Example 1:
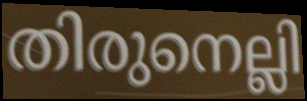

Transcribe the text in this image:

തിരുനെല്ലി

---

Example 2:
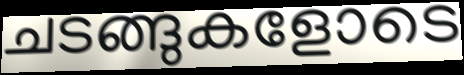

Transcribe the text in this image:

ചടങ്ങുകളോടെ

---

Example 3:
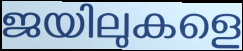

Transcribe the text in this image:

ജയിലുകളെ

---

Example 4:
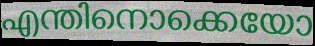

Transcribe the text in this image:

എന്തിനൊക്കെയോ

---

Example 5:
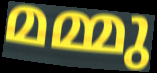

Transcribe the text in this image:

മമ്മു